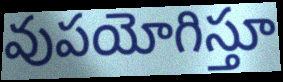
వుపయోగిస్తూ